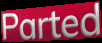
Parted